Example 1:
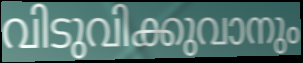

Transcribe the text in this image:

വിടുവിക്കുവാനും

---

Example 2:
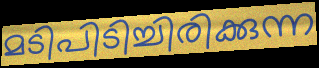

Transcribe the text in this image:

മടിപിടിച്ചിരിക്കുന്ന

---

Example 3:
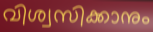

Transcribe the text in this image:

വിശ്വസിക്കാനും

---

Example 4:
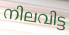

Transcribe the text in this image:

നിലവിട്ട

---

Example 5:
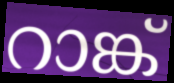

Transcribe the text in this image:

റാങ്ക്